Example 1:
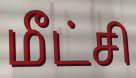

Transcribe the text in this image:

மீட்சி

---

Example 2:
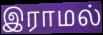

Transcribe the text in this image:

இராமல்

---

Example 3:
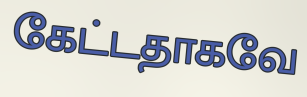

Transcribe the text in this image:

கேட்டதாகவே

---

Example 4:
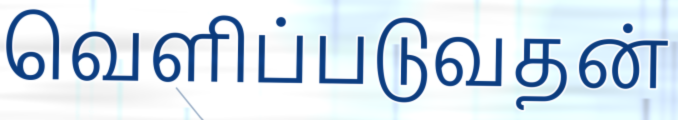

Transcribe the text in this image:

வெளிப்படுவதன்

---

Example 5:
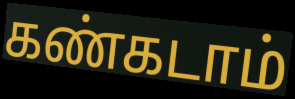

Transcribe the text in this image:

கண்கடாம்